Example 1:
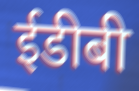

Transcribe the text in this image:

ईडीबी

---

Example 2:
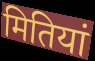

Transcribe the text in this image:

मितियां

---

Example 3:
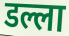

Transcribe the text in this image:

डल्ला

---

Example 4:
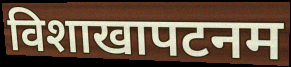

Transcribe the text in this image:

विशाखापटनम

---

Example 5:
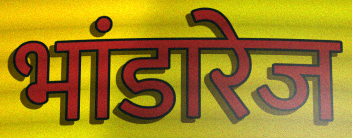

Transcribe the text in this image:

भांडारेज